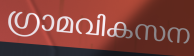
ഗ്രാമവികസന